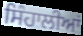
ਸਿੰਹਾਲੀਆਂ